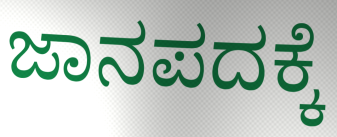
ಜಾನಪದಕ್ಕೆ